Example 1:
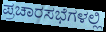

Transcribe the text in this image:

ಪ್ರಚಾರಸಭೆಗಳಲ್ಲಿ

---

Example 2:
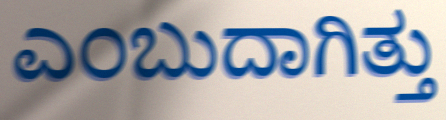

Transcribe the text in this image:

ಎಂಬುದಾಗಿತ್ತು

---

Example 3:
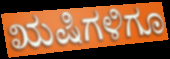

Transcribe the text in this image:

ಋಷಿಗಳಿಗೂ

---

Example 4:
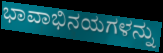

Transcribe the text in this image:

ಭಾವಾಭಿನಯಗಳನ್ನು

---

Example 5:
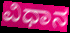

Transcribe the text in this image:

ವಿಧಾನ